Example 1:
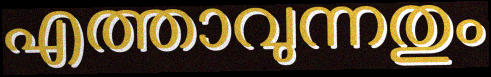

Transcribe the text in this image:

എത്താവുന്നതും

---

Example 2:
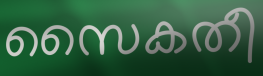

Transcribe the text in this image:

സൈകതീ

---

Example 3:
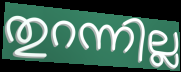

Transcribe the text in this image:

തുറന്നില്ല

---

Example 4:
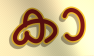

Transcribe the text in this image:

കാ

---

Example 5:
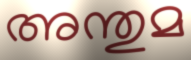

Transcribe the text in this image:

അന്തുമ